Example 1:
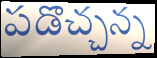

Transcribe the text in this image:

పడొచ్చన్న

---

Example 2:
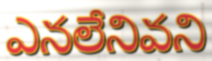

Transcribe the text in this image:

ఎనలేనివని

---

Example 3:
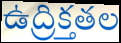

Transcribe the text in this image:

ఉద్రిక్తతల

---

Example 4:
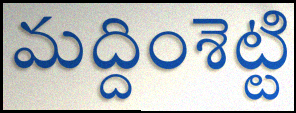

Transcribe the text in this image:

మద్దింశెట్టి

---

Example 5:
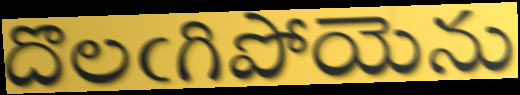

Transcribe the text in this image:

దొలఁగిపోయెను